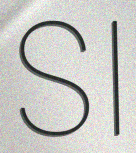
Sl